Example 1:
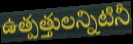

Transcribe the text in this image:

ఉత్పత్తులన్నిటినీ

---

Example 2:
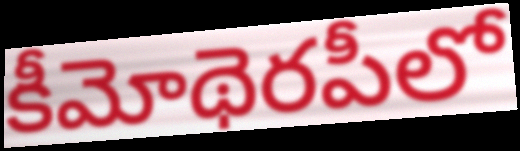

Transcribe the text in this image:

కీమోథెరపీలో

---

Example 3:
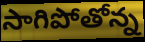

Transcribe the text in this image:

సాగిపోతోన్న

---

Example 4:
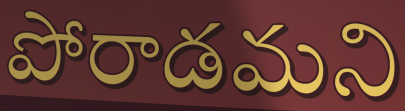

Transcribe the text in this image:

పోరాడమని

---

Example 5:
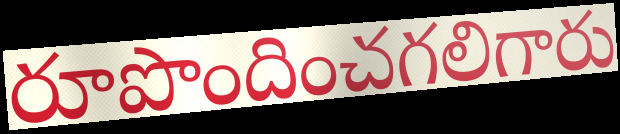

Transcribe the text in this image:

రూపొందించగలిగారు